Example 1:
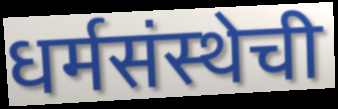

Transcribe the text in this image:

धर्मसंस्थेची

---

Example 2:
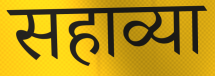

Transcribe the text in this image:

सहाव्या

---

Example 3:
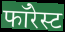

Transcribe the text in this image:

फॉरेस्ट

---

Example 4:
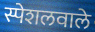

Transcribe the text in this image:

स्पेशलवाले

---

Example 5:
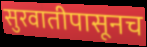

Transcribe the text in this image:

सुरवातीपासूनच